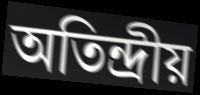
অতিন্দ্রীয়